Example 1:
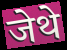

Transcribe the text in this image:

जेथे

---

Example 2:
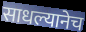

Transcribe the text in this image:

साधल्यानेच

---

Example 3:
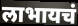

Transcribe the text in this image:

लाभायचं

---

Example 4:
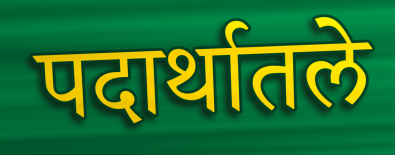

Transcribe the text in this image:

पदार्थातले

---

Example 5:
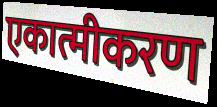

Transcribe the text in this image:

एकात्मीकरण